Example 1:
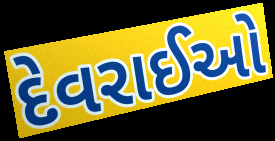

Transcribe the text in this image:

દેવરાઈઓ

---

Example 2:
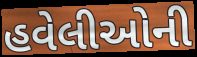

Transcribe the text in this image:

હવેલીઓની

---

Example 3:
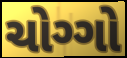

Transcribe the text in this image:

ચોગ્ગો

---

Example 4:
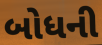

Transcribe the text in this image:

બોધની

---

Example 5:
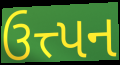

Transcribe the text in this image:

ઉત્ત્પન